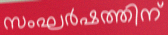
സംഘർഷത്തിന്